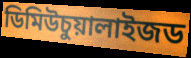
ডিমিউচুয়ালাইজড